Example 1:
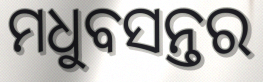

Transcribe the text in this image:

ମଧୁବସନ୍ତର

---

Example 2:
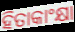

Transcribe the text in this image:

ହିତାକାଂକ୍ଷା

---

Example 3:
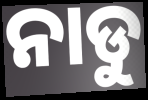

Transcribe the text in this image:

ନାଡୁ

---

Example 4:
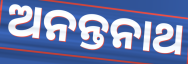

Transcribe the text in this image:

ଅନନ୍ତନାଥ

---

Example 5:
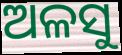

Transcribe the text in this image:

ଅଳସୁ